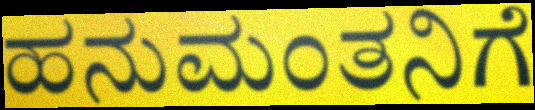
ಹನುಮಂತನಿಗೆ